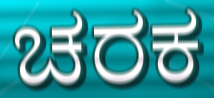
ಚರಕ